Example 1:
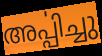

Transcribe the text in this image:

അൎപ്പിച്ചു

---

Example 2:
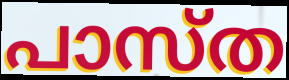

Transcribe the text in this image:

പാസ്ത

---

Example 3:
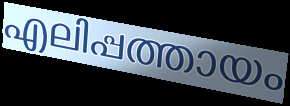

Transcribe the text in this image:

എലിപ്പത്തായം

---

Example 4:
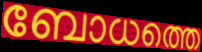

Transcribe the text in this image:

ബോധത്തെ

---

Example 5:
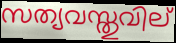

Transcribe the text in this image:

സത്യവസ്തുവില്